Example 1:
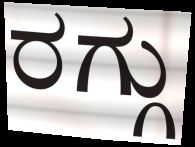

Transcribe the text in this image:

ರಗ್ಗು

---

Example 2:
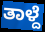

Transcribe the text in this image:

ತಾಳ್ದೆ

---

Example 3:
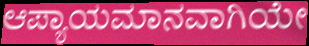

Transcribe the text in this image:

ಆಪ್ಯಾಯಮಾನವಾಗಿಯೇ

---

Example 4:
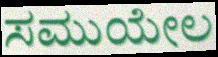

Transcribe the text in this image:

ಸಮುಯೇಲ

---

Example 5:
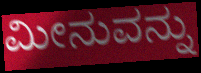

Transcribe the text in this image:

ಮೀನುವನ್ನು